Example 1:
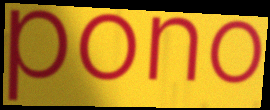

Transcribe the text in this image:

pono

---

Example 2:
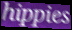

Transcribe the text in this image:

hippies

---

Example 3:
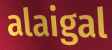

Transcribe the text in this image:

alaigal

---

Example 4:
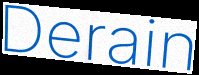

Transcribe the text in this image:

Derain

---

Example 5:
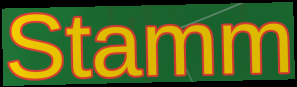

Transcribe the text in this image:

Stamm